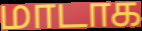
மாடாக